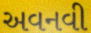
અવનવી